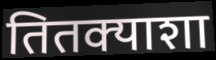
तितक्याशा